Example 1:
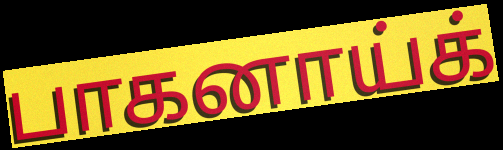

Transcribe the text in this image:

பாகனாய்க்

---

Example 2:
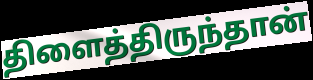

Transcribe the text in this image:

திளைத்திருந்தான்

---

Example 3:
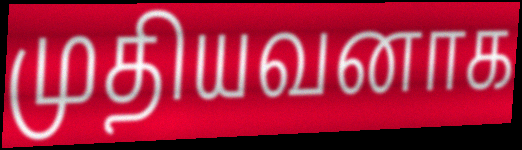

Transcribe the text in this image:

முதியவனாக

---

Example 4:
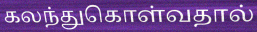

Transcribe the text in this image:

கலந்துகொள்வதால்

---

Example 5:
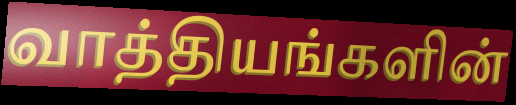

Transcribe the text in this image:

வாத்தியங்களின்